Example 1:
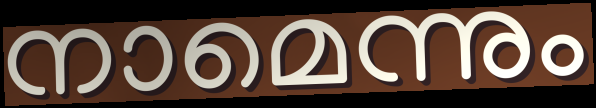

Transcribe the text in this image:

നാമെന്നും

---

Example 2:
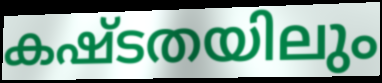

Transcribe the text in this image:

കഷ്ടതയിലും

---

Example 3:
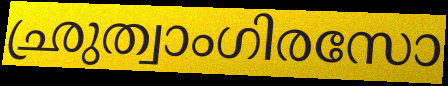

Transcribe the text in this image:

ഛ്രുത്വാംഗിരസോ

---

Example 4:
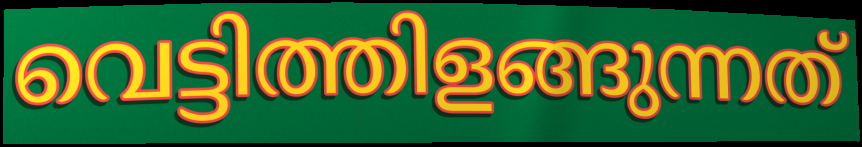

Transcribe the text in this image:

വെട്ടിത്തിളങ്ങുന്നത്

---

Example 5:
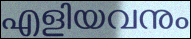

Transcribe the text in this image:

എളിയവനും